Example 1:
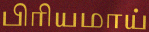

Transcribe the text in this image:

பிரியமாய்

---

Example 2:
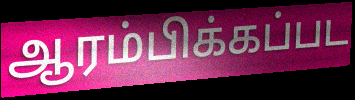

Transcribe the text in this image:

ஆரம்பிக்கப்பட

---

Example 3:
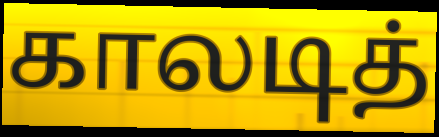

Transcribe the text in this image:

காலடித்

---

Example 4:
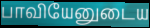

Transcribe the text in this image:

பாவியேனுடைய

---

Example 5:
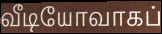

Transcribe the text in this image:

வீடியோவாகப்